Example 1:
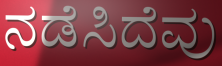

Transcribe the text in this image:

ನಡೆಸಿದೆವು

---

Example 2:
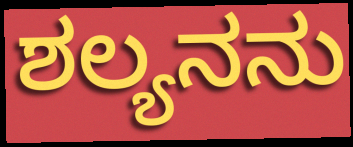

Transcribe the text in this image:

ಶಲ್ಯನನು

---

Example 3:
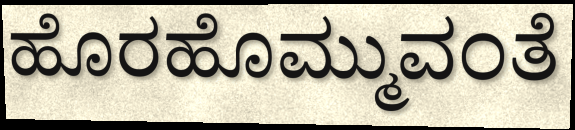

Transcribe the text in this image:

ಹೊರಹೊಮ್ಮುವಂತೆ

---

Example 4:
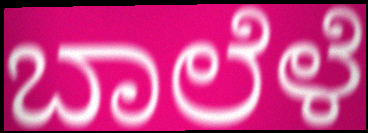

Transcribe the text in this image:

ಬಾಲೆಳೆ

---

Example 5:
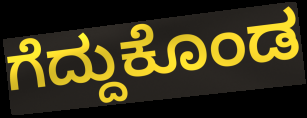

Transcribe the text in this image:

ಗೆದ್ದುಕೊಂಡ